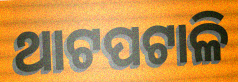
ଥାଟପଟାଳି